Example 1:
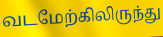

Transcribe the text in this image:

வடமேற்கிலிருந்து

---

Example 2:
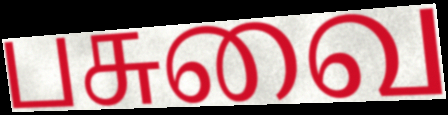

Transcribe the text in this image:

பசுவை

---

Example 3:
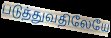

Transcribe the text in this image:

படுத்துவதிலேயே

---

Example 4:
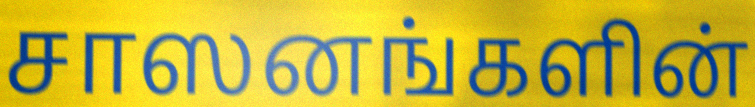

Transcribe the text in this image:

சாஸனங்களின்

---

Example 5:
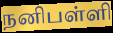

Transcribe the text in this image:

நனிபள்ளி